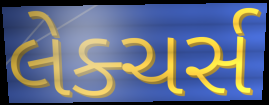
લેક્ચર્સ